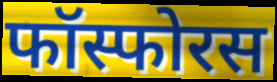
फॉस्फोरस